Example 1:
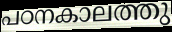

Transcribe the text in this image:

പഠനകാലത്തു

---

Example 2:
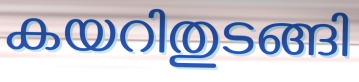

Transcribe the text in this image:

കയറിതുടങ്ങി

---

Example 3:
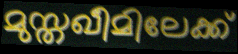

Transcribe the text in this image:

മുസ്തഖീമിലേക്ക്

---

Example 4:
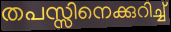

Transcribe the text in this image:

തപസ്സിനെക്കുറിച്ച്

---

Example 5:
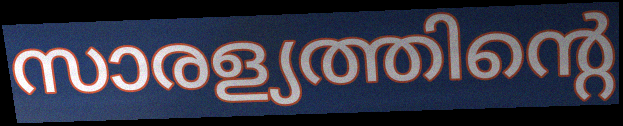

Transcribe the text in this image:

സാരള്യത്തിന്റെ